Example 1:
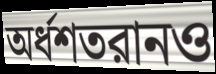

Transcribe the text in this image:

অর্ধশতরানও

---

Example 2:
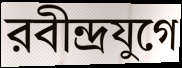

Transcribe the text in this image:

রবীন্দ্রযুগে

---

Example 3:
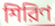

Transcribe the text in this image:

শিরিণ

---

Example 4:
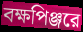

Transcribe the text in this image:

বক্ষপিঞ্জরে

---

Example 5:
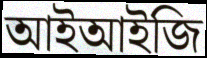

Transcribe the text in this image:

আইআইজি